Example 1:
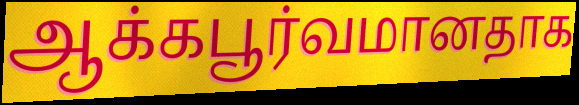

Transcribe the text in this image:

ஆக்கபூர்வமானதாக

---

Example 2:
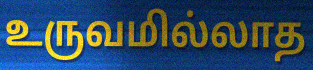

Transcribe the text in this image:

உருவமில்லாத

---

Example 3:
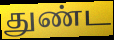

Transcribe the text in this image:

துண்ட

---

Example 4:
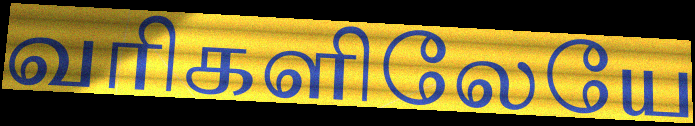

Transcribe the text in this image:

வரிகளிலேயே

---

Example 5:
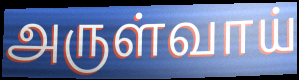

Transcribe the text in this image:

அருள்வாய்